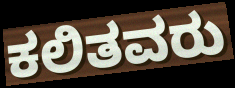
ಕಲಿತವರು